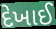
દેખાઈ